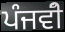
ਪੰਜਵੀਁ